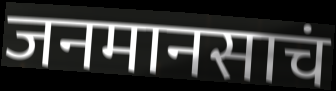
जनमानसाचं